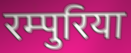
रम्पुरिया